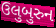
ઉલુબુરુન